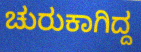
ಚುರುಕಾಗಿದ್ದ